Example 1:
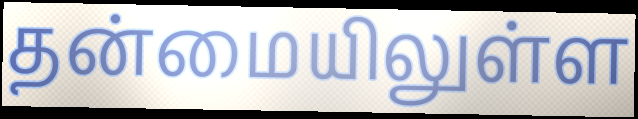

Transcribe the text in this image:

தன்மையிலுள்ள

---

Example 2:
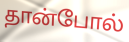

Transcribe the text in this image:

தான்போல்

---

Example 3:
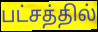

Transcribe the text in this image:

பட்சத்தில்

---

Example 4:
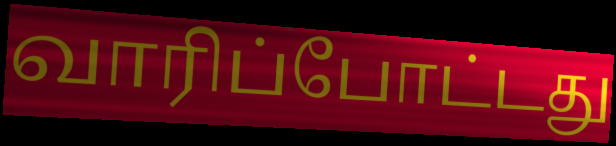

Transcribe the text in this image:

வாரிப்போட்டது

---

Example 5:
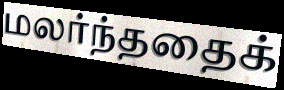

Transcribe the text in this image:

மலர்ந்ததைக்